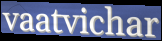
vaatvichar